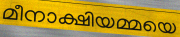
മീനാക്ഷിയമ്മയെ